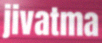
jivatma